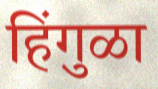
हिंगुळा